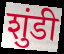
शुंडी